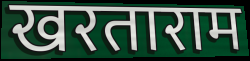
खरताराम